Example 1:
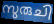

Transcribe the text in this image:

സുരുചി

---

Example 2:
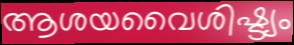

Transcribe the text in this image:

ആശയവൈശിഷ്ട്യം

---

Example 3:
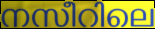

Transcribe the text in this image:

നസീറിലെ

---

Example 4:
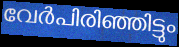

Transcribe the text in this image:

വേർപിരിഞ്ഞിട്ടും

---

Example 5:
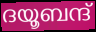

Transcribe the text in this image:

ദയൂബന്ദ്